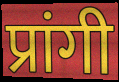
प्रांगी